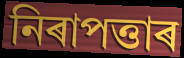
নিৰাপত্তাৰ